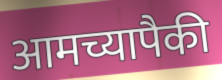
आमच्यापैकी